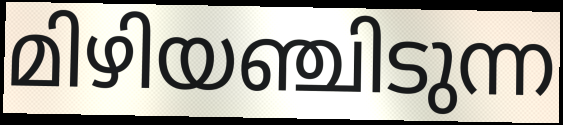
മിഴിയഞ്ചിടുന്ന